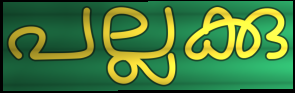
പല്ലക്കു